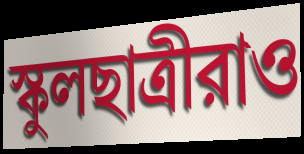
স্কুলছাত্রীরাও